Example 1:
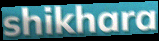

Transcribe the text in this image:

shikhara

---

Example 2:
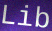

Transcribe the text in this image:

Lib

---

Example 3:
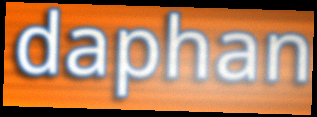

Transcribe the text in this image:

daphan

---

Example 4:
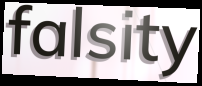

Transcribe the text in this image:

falsity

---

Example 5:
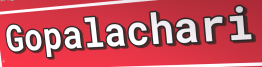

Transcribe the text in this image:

Gopalachari